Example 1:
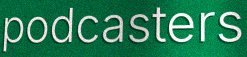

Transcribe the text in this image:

podcasters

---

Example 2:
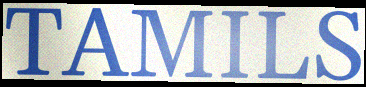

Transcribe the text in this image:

TAMILS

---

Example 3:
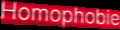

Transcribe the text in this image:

Homophobie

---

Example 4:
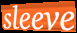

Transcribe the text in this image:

sleeve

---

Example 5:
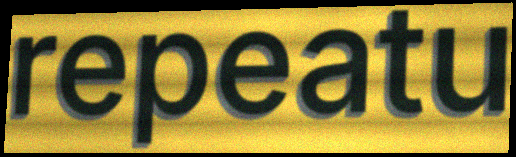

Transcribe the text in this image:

repeatu